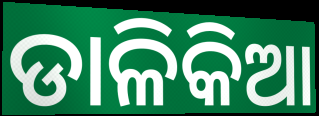
ଡାଳିକିଆ